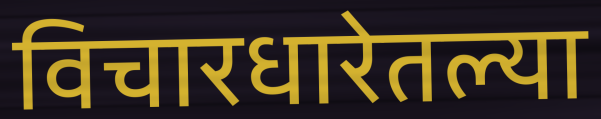
विचारधारेतल्या